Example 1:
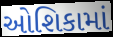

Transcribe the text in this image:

ઓશિકામાં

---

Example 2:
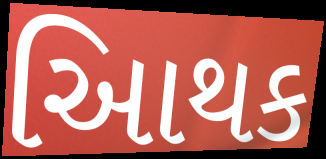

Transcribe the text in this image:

આિથક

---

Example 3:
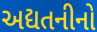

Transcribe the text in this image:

અદ્યતનીનો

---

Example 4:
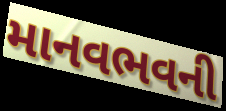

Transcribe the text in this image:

માનવભવની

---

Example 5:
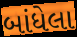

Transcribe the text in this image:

બાંધેલા